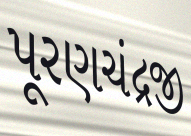
પૂરણચંદ્રજી